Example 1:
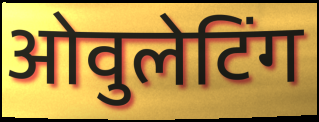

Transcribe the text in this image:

ओवुलेटिंग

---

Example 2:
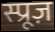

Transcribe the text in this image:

स्प्रूज़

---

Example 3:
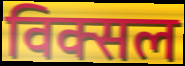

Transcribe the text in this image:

विक्सल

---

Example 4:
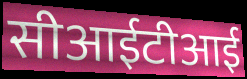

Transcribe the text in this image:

सीआईटीआई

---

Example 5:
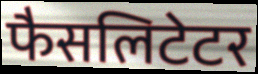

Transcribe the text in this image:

फैसलिटेटर